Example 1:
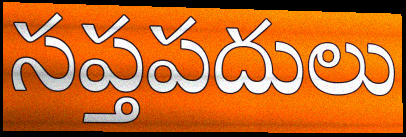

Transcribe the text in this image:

సప్తపదులు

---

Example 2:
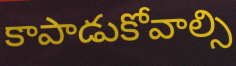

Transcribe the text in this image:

కాపాడుకోవాల్సి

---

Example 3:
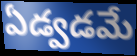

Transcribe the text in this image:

ఏడ్వడమే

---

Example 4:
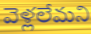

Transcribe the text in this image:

వెళ్లలేమని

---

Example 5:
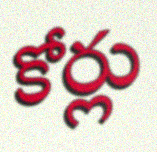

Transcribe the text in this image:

కోర్లు